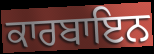
ਕਾਰਬਾਇਨ